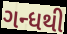
ગન્ધથી